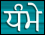
ਧੰਮੇ